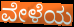
ವೇಳೆಯ